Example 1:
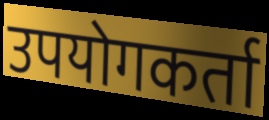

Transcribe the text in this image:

उपयोगकर्ता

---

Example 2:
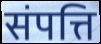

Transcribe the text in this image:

संपत्ति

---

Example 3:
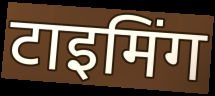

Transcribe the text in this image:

टाइमिंग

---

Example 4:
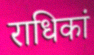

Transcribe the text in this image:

राधिकां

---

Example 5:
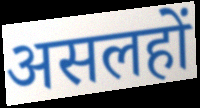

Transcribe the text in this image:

असलहों